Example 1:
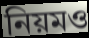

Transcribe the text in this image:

নিয়মও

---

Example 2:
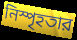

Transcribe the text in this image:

নিস্পৃহতার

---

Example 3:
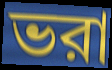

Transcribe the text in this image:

ভরা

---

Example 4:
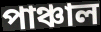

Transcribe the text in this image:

পাঞ্চাল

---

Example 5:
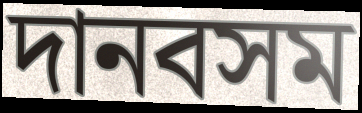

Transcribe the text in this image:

দানবসম